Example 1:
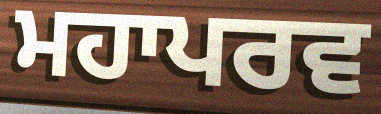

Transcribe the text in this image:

ਮਹਾਪਰਵ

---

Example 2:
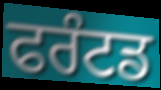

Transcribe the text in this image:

ਫਰੰਟਡ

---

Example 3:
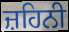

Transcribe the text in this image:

ਜ਼ਹਿਨੀ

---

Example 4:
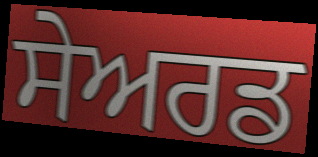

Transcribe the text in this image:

ਸੇਅਰਡ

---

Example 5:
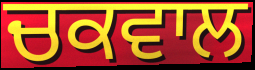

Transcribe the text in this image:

ਚਕਵਾਲ